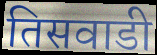
तिसवाडी